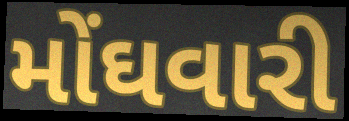
મોંઘવારી